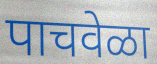
पाचवेळा